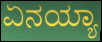
ಏನಯ್ಯಾ